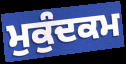
ਮੁਕੁੰਦਕਮ